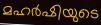
മഹർഷിയുടെ